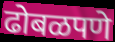
ढोबळपणे